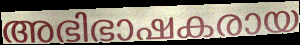
അഭിഭാഷകരായ